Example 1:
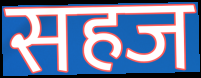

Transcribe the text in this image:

सहज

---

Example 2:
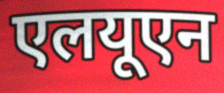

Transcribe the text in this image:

एलयूएन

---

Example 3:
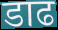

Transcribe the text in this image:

डाढ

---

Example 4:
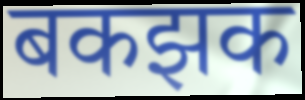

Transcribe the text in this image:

बकझक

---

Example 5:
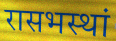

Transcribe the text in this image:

रासभस्थां